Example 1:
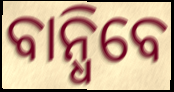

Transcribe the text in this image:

ବାନ୍ଧିବେ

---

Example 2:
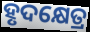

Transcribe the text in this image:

ହୃଦକ୍ଷେତ୍ର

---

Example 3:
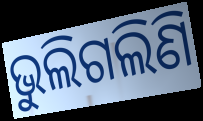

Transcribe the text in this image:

ଭୁଲିଗଲିଣି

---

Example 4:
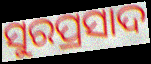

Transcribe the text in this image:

ସୁରପ୍ରସାଦ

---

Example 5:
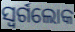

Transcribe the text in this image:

ସ୍ୱର୍ଗଲୋକ